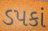
ડપકાં